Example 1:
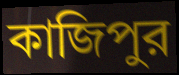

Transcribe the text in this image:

কাজিপুর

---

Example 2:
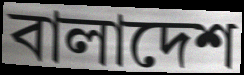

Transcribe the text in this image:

বালাদেশ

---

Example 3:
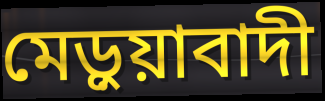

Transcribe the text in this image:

মেড়ুয়াবাদী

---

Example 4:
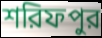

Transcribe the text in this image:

শরিফপুর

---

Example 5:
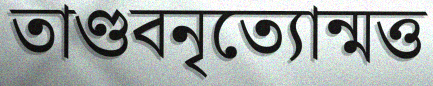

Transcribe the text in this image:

তাণ্ডবনৃত্যোন্মত্ত